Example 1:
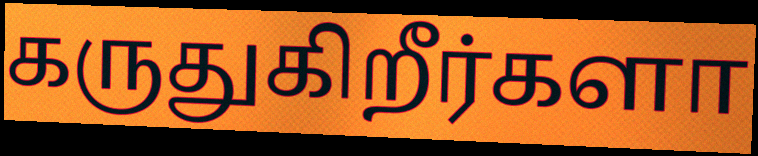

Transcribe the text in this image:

கருதுகிறீர்களா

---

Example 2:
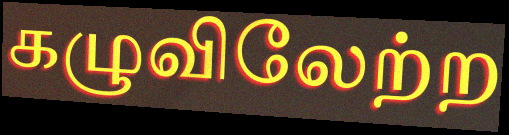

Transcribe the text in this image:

கழுவிலேற்ற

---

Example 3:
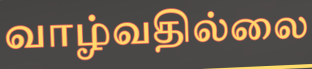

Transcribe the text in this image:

வாழ்வதில்லை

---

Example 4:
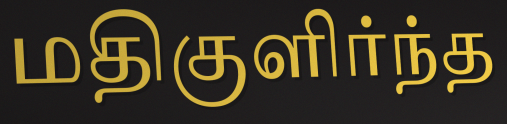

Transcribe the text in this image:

மதிகுளிர்ந்த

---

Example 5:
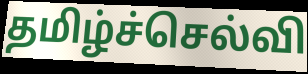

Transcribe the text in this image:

தமிழ்ச்செல்வி